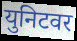
युनिटवर